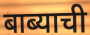
बाब्याची